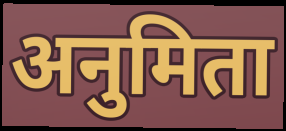
अनुमिता